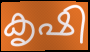
കൃഷി